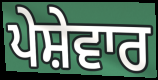
ਪੇਸ਼ੇਵਾਰ